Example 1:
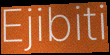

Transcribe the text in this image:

Ejibiti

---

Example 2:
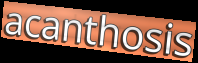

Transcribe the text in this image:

acanthosis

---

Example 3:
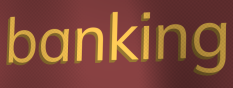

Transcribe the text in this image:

banking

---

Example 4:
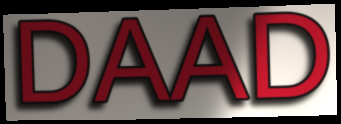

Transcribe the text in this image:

DAAD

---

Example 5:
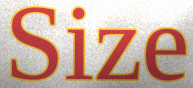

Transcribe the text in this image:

Size